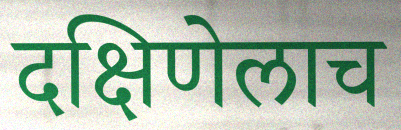
दक्षिणेलाच